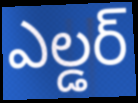
ఎల్డర్